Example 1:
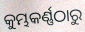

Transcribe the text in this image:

କୁମ୍ଭକର୍ଣ୍ଣଠାରୁ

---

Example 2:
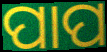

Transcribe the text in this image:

ପାପ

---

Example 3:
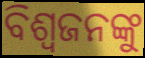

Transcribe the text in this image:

ବିଶ୍ୱଜନଙ୍କୁ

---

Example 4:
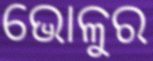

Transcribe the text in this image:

ଭୋଳୁର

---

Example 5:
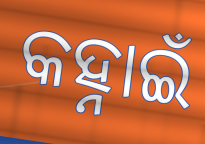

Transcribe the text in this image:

କହ୍ନାଇଁ